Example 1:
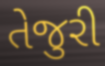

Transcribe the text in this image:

તેજુરી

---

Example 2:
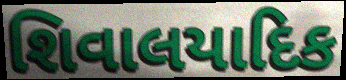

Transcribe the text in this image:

શિવાલયાદિક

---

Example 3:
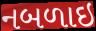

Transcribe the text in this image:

નબળાઇ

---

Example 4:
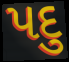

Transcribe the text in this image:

પદુ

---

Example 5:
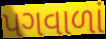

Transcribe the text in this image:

પગવાળાં